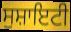
ਸੁਸ਼ਾਇਟੀ